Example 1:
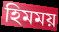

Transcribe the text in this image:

হিমময়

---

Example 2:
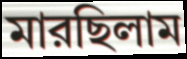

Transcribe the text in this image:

মারছিলাম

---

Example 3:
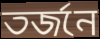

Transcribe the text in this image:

তর্জনে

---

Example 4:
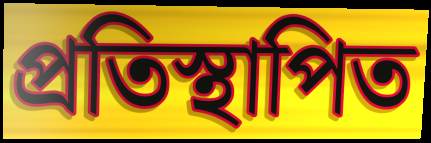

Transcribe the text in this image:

প্রতিস্থাপিত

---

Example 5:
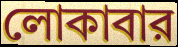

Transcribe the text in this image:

লোকাবার